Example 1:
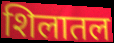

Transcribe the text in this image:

शिलातल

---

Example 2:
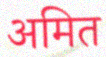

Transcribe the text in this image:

अमित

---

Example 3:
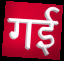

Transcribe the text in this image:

गई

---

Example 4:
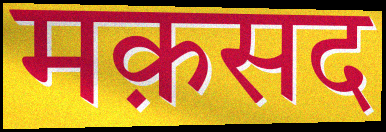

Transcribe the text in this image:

मक़सद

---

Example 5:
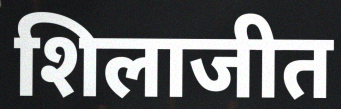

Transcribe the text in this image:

शिलाजीत